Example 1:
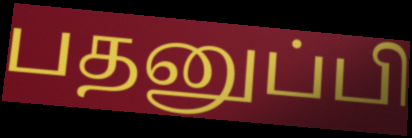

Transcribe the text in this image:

பதனுப்பி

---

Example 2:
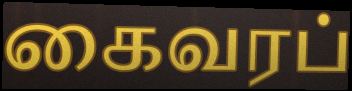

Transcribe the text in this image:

கைவரப்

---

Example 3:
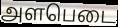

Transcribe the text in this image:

அளபெடை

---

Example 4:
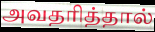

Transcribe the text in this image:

அவதரித்தால்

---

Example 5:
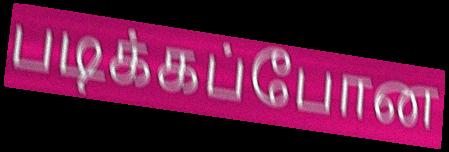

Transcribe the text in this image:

படிக்கப்போன